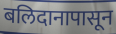
बलिदानापासून